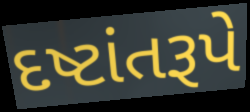
દષ્ટાંતરૂપે